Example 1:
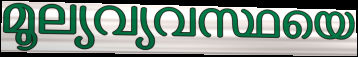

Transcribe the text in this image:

മൂല്യവ്യവസ്ഥയെ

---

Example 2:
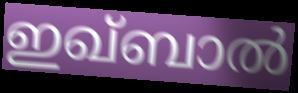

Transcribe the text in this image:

ഇഖ്ബാൽ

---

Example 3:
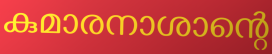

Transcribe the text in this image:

കുമാരനാശാന്റെ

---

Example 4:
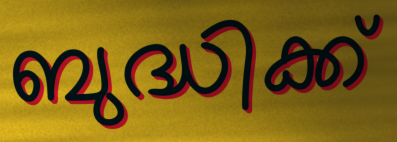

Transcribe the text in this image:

ബുദ്ധിക്ക്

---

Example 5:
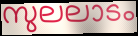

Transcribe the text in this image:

സുലലാടം